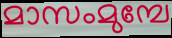
മാസംമുമ്പേ